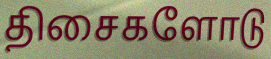
திசைகளோடு